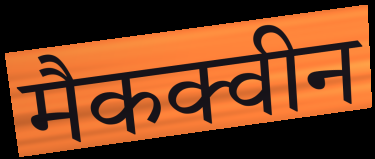
मैकक्वीन